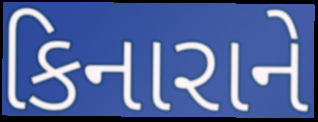
કિનારાને